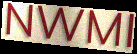
NWMI